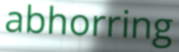
abhorring